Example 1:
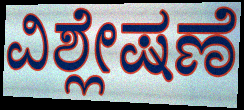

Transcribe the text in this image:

ವಿಶ್ಲೇಷಣೆ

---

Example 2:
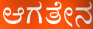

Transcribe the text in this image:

ಆಗತೇನ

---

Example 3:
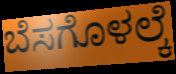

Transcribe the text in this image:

ಬೆಸಗೊಳಲ್ಕೆ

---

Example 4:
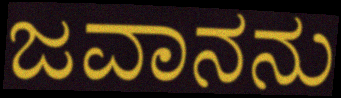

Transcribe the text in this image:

ಜವಾನನು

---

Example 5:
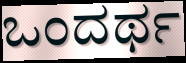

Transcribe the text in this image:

ಒಂದರ್ಥ